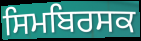
ਸਿਮਬਿਰਸਕ